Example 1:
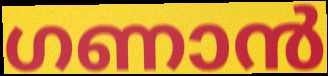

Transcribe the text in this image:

ഗണാൻ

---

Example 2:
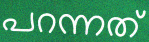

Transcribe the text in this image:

പറന്നത്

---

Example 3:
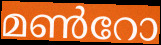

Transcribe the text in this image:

മൺറോ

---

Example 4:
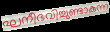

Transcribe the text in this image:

ഘനീഭവിച്ചുണ്ടാകുന്ന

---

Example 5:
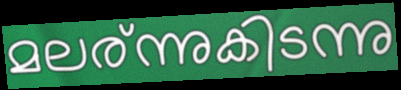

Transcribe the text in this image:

മലര്ന്നുകിടന്നു